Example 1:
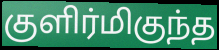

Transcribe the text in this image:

குளிர்மிகுந்த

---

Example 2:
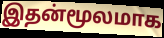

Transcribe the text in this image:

இதன்மூலமாக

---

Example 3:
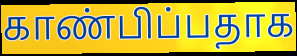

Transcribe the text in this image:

காண்பிப்பதாக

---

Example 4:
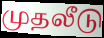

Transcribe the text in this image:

முதலீடு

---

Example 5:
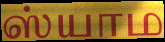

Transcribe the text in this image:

ஸ்யாம